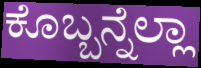
ಕೊಬ್ಬನ್ನೆಲ್ಲಾ